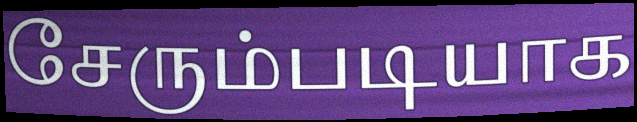
சேரும்படியாக